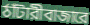
ঠাঁটারীবাজারে